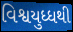
વિશ્વયુધ્ધથી